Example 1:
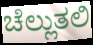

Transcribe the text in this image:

ಚೆಲ್ಲುತಲಿ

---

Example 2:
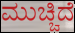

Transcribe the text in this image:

ಮುಚ್ಚಿದೆ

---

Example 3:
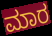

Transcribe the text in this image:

ಮಾರ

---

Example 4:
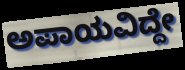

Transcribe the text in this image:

ಅಪಾಯವಿದ್ದೇ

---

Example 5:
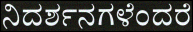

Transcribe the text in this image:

ನಿದರ್ಶನಗಳೆಂದರೆ